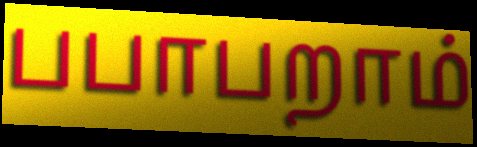
பபாபறாம்